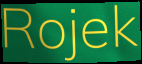
Rojek